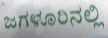
ಜಗಳೂರಿನಲ್ಲಿ